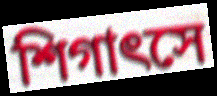
শিগাৎসে